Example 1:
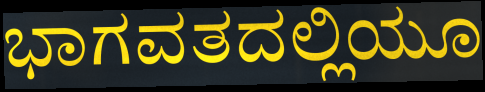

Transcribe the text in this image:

ಭಾಗವತದಲ್ಲಿಯೂ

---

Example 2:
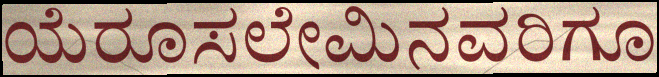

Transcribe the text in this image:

ಯೆರೂಸಲೇಮಿನವರಿಗೂ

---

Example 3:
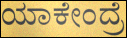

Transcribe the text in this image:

ಯಾಕೇಂದ್ರೆ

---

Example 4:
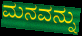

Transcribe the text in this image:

ಮನವನ್ನು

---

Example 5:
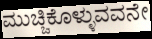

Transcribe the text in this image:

ಮುಚ್ಚಿಕೊಳ್ಳುವವನೇ